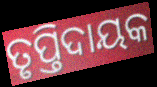
ତୃପ୍ତିଦାୟକ